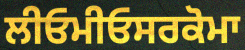
ਲੀਓਮੀਓਸਰਕੋਮਾ